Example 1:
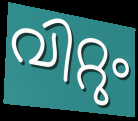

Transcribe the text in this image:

വിറ്റും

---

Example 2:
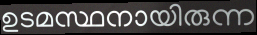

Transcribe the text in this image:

ഉടമസ്ഥനായിരുന്ന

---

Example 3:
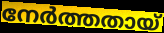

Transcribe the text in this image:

നേർത്തതായ്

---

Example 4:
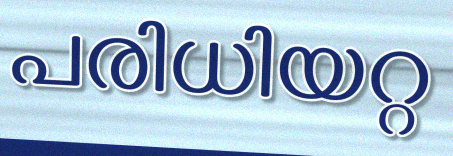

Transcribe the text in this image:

പരിധിയറ്റ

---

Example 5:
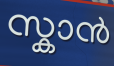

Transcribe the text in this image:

സ്കാൻ